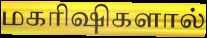
மகரிஷிகளால்